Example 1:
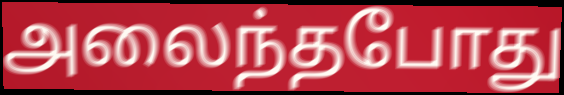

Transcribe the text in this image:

அலைந்தபோது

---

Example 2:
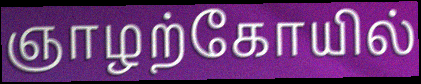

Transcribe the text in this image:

ஞாழற்கோயில்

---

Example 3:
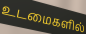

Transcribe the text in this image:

உடமைகளில்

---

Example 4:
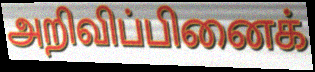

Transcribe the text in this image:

அறிவிப்பினைக்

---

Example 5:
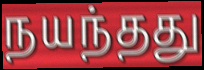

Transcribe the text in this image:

நயந்தது